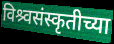
विश्र्वसंस्कृतीच्या